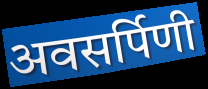
अवसर्पिणी